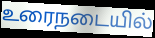
உரைநடையில்